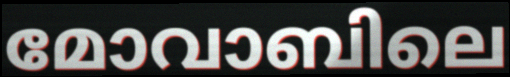
മോവാബിലെ